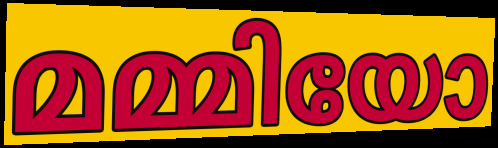
മമ്മിയോ